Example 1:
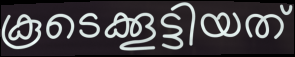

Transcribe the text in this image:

കൂടെക്കൂട്ടിയത്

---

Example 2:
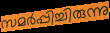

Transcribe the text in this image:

സമർപ്പിച്ചിരുന്നു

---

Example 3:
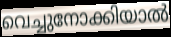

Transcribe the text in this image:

വെച്ചുനോക്കിയാൽ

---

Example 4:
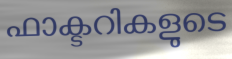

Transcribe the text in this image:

ഫാക്ടറികളുടെ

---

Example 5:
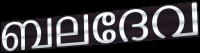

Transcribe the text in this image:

ബലദേവ